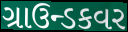
ગ્રાઉન્ડકવર